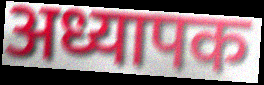
अध्यापक